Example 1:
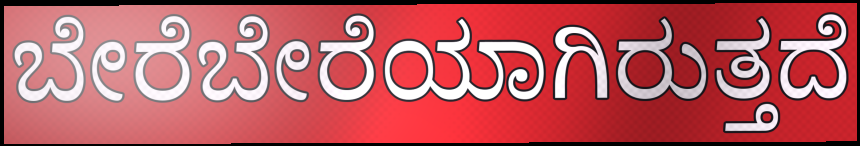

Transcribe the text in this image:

ಬೇರೆಬೇರೆಯಾಗಿರುತ್ತದೆ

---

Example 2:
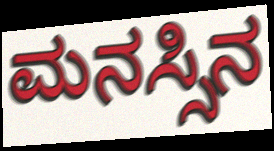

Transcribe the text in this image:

ಮನಸ್ಸಿನ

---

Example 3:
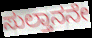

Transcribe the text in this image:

ಸುಲ್ತಾನನೇ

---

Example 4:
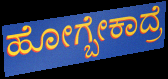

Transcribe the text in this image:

ಹೋಗ್ಬೇಕಾದ್ರೆ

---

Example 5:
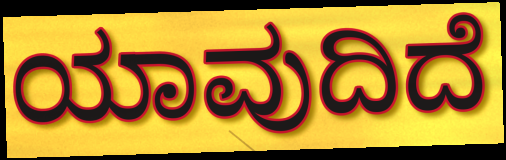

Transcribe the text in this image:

ಯಾವುದಿದೆ